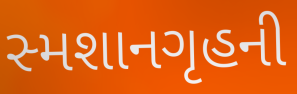
સ્મશાનગૃહની